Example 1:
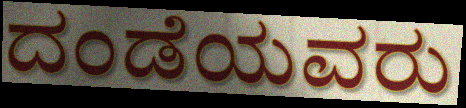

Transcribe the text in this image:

ದಂಡೆಯವರು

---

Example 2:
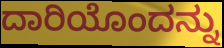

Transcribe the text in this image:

ದಾರಿಯೊಂದನ್ನು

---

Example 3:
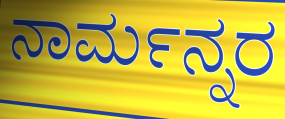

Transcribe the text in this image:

ನಾರ್ಮನ್ನರ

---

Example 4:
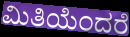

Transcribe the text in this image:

ಮಿತಿಯೆಂದರೆ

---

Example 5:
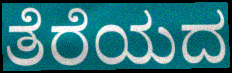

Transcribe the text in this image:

ತೆರೆಯದ